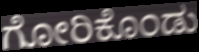
ಗೋರಿಕೊಂಡು